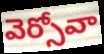
వెర్సోవా